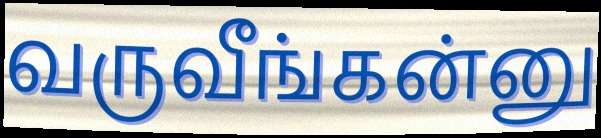
வருவீங்கன்னு